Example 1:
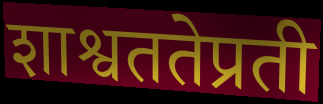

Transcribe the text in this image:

शाश्वततेप्रती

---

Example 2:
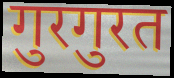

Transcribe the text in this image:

गुरगुरत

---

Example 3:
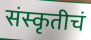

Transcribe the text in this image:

संस्कृतीचं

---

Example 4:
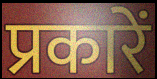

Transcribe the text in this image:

प्रकारें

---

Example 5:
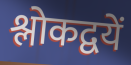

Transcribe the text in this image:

श्लोकद्वयें